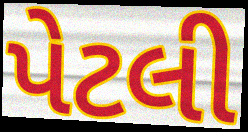
પેટલી